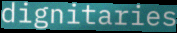
dignitaries